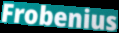
Frobenius